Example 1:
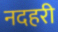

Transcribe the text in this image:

नदहरी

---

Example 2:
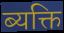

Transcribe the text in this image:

ब्यक्ति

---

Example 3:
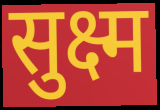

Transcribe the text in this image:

सुक्ष्म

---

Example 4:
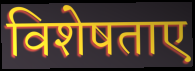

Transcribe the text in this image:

विशेषताए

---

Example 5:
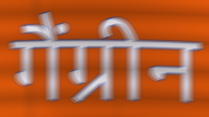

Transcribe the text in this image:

गैंग्रीन